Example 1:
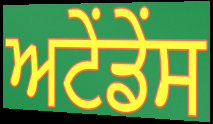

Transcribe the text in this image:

ਅਟੇਂਡੇਂਸ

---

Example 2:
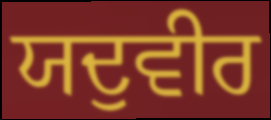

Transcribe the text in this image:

ਯਦੁਵੀਰ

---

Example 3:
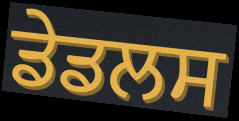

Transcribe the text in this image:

ਡੇਡਲਸ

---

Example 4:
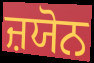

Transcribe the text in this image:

ਜ਼ਯੋਨ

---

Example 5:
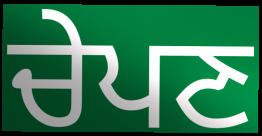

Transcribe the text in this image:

ਚੇਪਣ